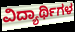
ವಿದ್ಯಾರ್ಥಿಗಳ